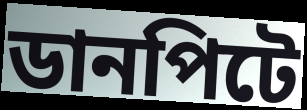
ডানপিটে